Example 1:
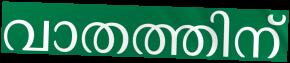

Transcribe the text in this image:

വാതത്തിന്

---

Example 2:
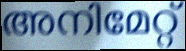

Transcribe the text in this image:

അനിമേറ്റ്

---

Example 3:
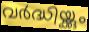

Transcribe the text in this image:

വർദ്ധിയ്ക്കും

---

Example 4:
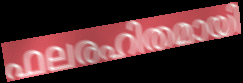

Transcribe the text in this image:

ഫലരഹിതമായി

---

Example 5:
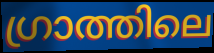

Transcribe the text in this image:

ഗ്രാത്തിലെ